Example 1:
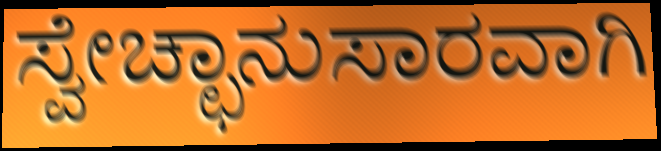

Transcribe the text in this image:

ಸ್ವೇಚ್ಛಾನುಸಾರವಾಗಿ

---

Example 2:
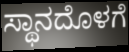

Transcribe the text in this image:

ಸ್ಥಾನದೊಳಗೆ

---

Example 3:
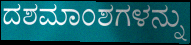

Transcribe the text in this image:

ದಶಮಾಂಶಗಳನ್ನು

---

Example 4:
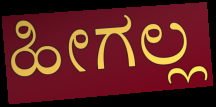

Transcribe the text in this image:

ಹೀಗಲ್ಲ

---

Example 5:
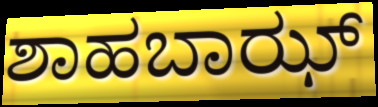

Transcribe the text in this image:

ಶಾಹಬಾಝ್